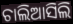
ଚାଲିଆସିଲି